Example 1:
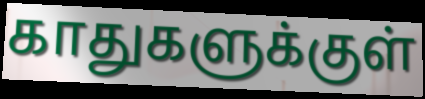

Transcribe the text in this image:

காதுகளுக்குள்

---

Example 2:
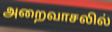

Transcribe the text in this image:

அறைவாசலில்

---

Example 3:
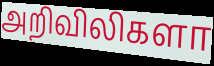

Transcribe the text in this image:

அறிவிலிகளா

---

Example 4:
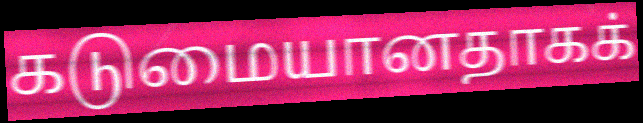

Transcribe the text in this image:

கடுமையானதாகக்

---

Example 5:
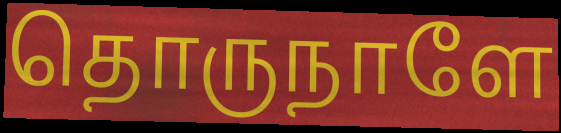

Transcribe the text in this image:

தொருநாளே